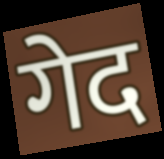
गेद